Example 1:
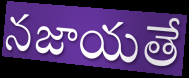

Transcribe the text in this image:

నజాయతే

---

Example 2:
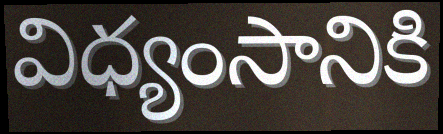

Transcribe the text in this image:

విధ్యంసానికి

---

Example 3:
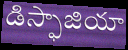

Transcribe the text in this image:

డిస్ఫాజియా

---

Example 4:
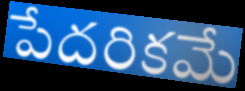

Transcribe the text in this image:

పేదరికమే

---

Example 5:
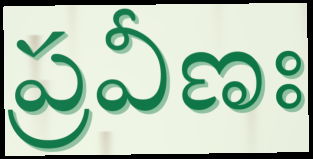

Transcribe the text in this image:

ప్రవీణః